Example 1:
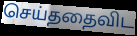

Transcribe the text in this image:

செய்ததைவிட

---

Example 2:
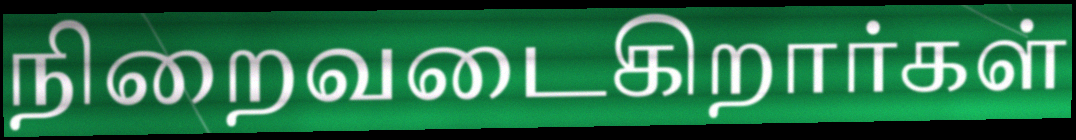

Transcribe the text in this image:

நிறைவடைகிறார்கள்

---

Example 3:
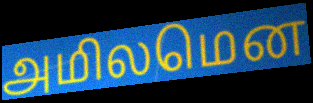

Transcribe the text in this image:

அமிலமென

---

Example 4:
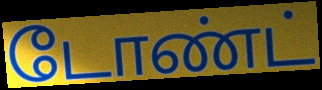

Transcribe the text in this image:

டோண்ட்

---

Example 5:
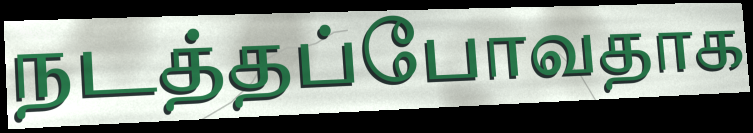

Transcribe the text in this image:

நடத்தப்போவதாக